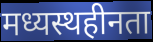
मध्यस्थहीनता